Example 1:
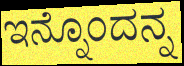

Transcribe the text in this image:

ಇನ್ನೊಂದನ್ನ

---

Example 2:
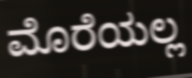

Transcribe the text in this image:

ಮೊರೆಯಲ್ಲ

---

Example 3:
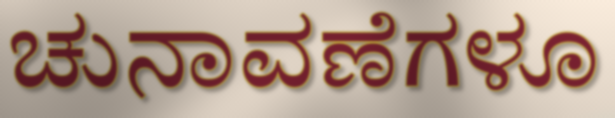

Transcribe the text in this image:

ಚುನಾವಣೆಗಳೂ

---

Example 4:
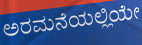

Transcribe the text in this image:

ಅರಮನೆಯಲ್ಲಿಯೇ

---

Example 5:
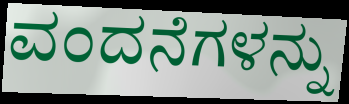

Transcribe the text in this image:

ವಂದನೆಗಳನ್ನು